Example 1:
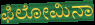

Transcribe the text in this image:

ಫಿಲೋಮಿನಾ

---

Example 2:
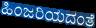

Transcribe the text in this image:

ಹಿಂಜರಿಯದಂತೆ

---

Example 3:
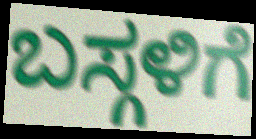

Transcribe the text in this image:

ಬಸ್ಗಳಿಗೆ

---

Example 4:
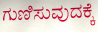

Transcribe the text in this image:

ಗುಣಿಸುವುದಕ್ಕೆ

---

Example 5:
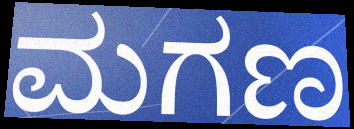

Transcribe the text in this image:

ಮಗಣ